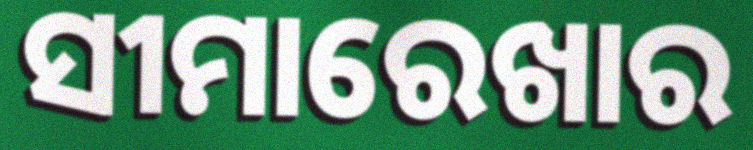
ସୀମାରେଖାର